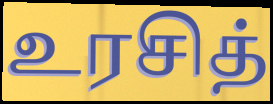
உரசித்